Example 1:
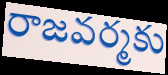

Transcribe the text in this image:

రాజవర్మకు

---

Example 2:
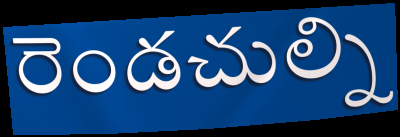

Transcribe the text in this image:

రెండచుల్ని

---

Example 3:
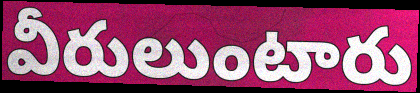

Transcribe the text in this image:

వీరులుంటారు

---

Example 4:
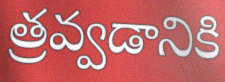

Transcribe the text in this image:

త్రవ్వడానికి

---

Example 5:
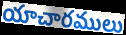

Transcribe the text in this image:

యాచారములు